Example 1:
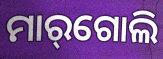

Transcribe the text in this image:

ମାର୍‌ଗୋଲି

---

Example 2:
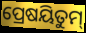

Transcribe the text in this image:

ପ୍ରେଷୟିତୁମ୍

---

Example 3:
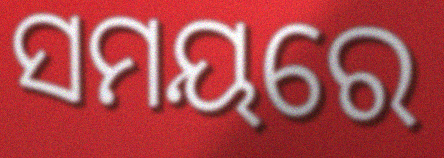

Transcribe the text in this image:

ସମୟରେ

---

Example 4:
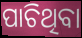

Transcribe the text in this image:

ପାଚିଥିବା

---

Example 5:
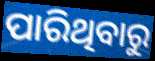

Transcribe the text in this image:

ପାରିଥିବାରୁ